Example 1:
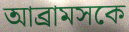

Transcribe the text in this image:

আব্রামসকে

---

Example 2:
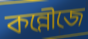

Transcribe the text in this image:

কন্নৌজে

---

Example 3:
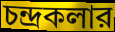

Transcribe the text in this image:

চন্দ্রকলার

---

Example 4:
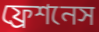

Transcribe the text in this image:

ফ্রেশনেস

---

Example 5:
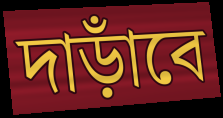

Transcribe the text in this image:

দাড়াঁবে